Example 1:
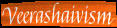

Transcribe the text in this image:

Veerashaivism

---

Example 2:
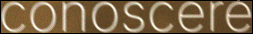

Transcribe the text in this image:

conoscere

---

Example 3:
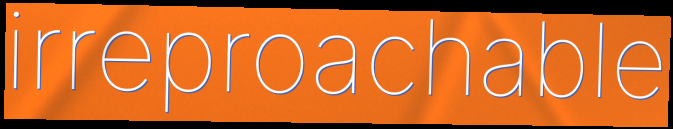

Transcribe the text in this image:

irreproachable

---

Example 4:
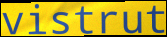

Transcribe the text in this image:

vistrut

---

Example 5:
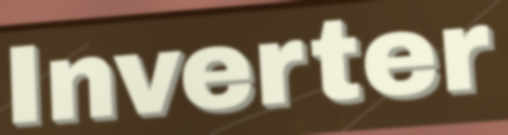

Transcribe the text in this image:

Inverter